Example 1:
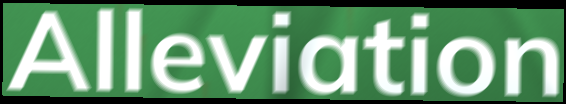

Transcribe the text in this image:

Alleviation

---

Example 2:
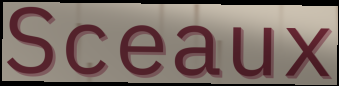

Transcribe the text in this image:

Sceaux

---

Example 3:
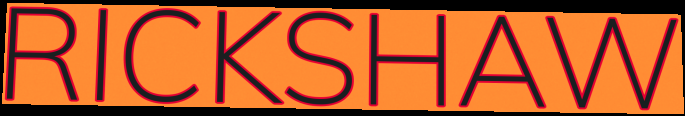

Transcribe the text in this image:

RICKSHAW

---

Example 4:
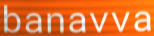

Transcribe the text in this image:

banavva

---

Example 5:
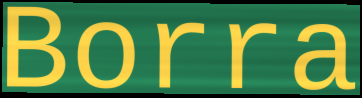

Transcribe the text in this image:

Borra